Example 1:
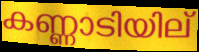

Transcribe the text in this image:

കണ്ണാടിയില്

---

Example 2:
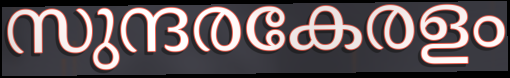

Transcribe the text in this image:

സുന്ദരകേരളം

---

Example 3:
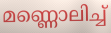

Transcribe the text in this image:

മണ്ണൊലിച്ച്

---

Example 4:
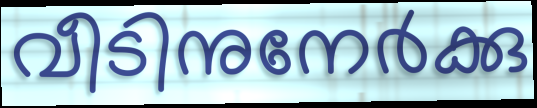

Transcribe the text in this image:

വീടിനുനേർക്കു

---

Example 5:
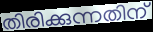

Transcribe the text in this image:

തിരിക്കുന്നതിന്